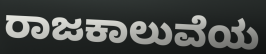
ರಾಜಕಾಲುವೆಯ